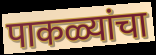
पाकळ्यांचा